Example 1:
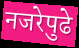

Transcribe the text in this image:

नजरेपुढे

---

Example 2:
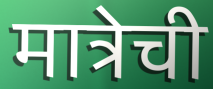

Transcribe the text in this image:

मात्रेची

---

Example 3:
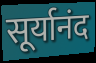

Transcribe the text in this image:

सूर्यानंद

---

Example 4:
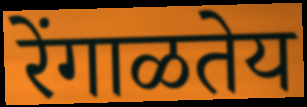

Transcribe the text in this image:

रेंगाळतेय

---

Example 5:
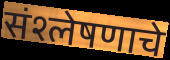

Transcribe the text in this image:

संश्लेषणाचे